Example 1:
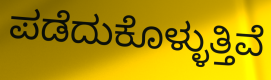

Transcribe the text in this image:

ಪಡೆದುಕೊಳ್ಳುತ್ತಿವೆ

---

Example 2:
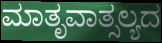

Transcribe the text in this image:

ಮಾತೃವಾತ್ಸಲ್ಯದ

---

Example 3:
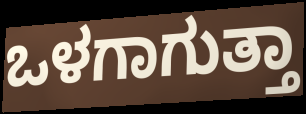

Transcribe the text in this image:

ಒಳಗಾಗುತ್ತಾ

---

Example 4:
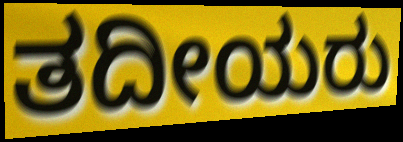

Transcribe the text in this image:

ತದೀಯರು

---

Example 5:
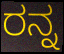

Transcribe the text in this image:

ರನ್ನ